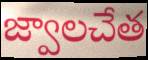
జ్వాలచేత